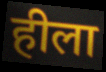
हीला